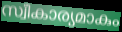
സ്വീകാര്യമാകും